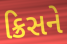
ક્રિસને